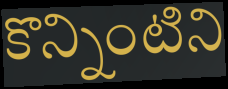
కొన్నింటిని